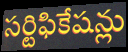
సర్టిఫికేషన్లు